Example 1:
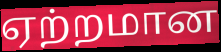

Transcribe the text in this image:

ஏற்றமான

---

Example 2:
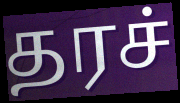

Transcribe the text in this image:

தரச்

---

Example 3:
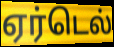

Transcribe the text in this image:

ஏர்டெல்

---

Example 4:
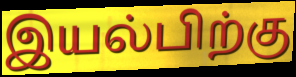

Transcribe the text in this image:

இயல்பிற்கு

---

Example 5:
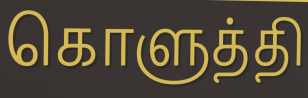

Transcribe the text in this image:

கொளுத்தி